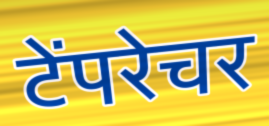
टेंपरेचर